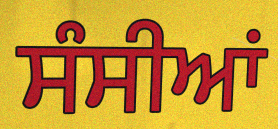
ਸੰਸੀਆਂ